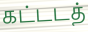
கட்டடத்